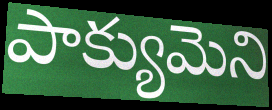
పాక్యుమెని